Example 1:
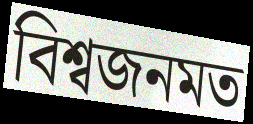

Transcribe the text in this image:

বিশ্বজনমত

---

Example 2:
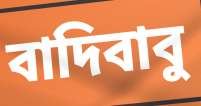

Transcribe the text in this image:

বাদিবাবু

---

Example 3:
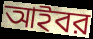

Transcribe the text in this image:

আইবর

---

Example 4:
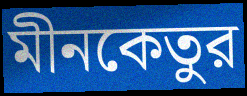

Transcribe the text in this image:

মীনকেতুর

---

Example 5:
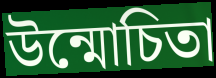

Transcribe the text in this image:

উন্মোচিতা